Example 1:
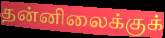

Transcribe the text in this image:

தன்னிலைக்குக்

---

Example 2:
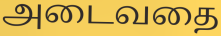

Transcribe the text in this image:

அடைவதை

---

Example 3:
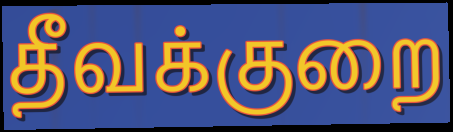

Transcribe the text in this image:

தீவக்குறை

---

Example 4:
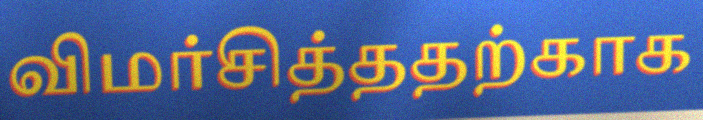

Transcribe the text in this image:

விமர்சித்ததற்காக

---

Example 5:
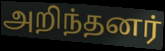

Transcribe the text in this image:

அறிந்தனர்